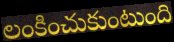
లంకించుకుంటుంది